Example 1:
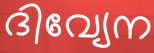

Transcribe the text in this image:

ദിവ്യേന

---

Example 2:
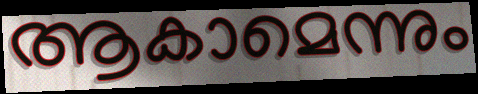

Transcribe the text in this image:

ആകാമെന്നും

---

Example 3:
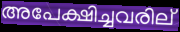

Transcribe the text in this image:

അപേക്ഷിച്ചവരില്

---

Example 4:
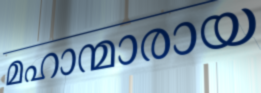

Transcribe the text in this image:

മഹാന്മാരായ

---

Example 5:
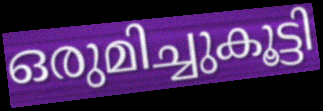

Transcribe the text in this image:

ഒരുമിച്ചുകൂട്ടി